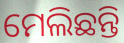
ମେଲିଛନ୍ତି